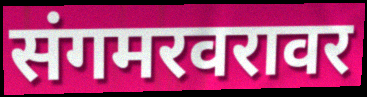
संगमरवरावर